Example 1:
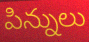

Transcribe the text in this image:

పిన్నులు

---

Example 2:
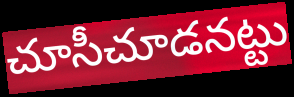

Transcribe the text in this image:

చూసీచూడనట్టు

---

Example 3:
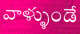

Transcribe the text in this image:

వాళ్ళుండే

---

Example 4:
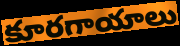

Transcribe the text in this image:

కూరగాయాలు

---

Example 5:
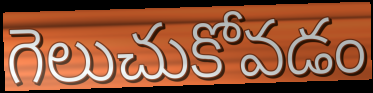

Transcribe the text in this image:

గెలుచుకోవడం